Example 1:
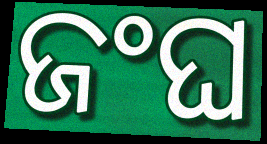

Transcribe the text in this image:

ଜଂଘ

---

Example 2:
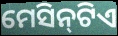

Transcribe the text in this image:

ମେସିନ୍‌ଟିଏ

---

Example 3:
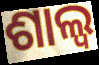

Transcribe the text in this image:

ଶାଲ୍ୱ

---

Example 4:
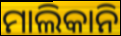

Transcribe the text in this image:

ମାଲିକାନି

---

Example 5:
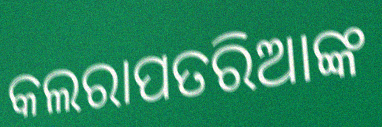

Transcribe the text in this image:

କଲରାପତରିଆଙ୍କ